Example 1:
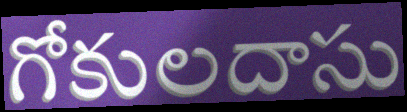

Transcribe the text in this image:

గోకులదాసు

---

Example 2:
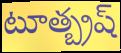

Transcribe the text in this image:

టూత్బ్రష్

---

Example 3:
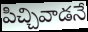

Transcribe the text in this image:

పిచ్చివాడనే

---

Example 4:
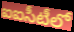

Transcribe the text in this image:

ఐఐసీటీలో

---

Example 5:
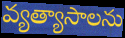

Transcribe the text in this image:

వ్యత్యాసాలను